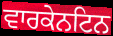
ਵਾਰਕੇਨਟਿਨ